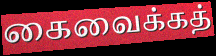
கைவைக்கத்